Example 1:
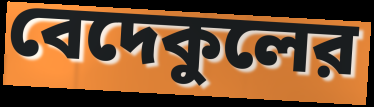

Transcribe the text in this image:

বেদেকুলের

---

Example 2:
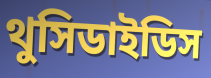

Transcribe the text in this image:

থুসিডাইডিস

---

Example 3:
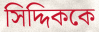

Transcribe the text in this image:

সিদ্দিককে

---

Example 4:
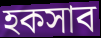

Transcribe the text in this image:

হকসাব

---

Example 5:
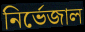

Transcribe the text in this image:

নির্ভেজাল